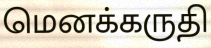
மெனக்கருதி